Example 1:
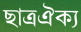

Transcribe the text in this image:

ছাত্রঐক্য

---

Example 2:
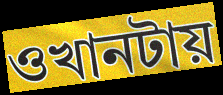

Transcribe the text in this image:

ওখানটায়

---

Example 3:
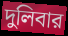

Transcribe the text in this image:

দুলিবার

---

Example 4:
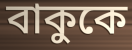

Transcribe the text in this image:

বাকুকে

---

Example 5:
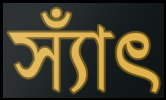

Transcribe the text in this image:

স্যাঁৎ